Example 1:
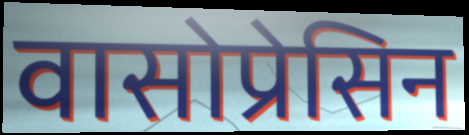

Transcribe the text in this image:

वासोप्रेसिन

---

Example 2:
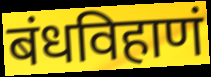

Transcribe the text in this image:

बंधविहाणं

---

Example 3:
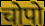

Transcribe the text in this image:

चोपो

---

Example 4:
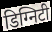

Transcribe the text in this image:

डिग्निटी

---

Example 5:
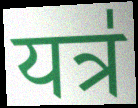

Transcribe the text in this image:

यत्र॑